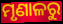
ମୃଣାଳରୁ